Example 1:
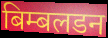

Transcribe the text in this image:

बिम्बलडन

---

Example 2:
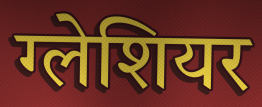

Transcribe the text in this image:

ग्‍लेशियर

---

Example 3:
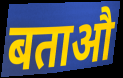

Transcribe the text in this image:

बताऔ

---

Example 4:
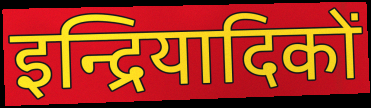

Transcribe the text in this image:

इन्द्रियादिकों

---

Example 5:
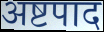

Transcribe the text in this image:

अष्टपाद